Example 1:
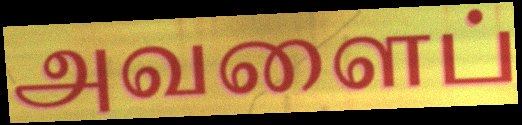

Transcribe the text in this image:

அவளைப்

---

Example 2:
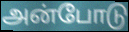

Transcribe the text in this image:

அன்போடு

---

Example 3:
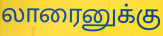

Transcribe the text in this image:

லாரைனுக்கு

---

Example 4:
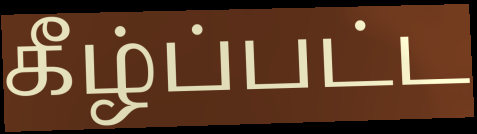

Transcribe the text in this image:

கீழ்ப்பட்ட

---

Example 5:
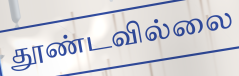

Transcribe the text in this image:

தூண்டவில்லை